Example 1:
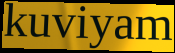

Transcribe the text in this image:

kuviyam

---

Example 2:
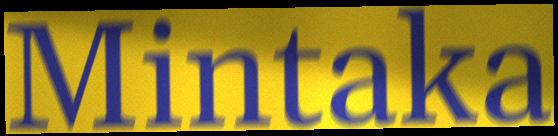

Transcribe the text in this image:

Mintaka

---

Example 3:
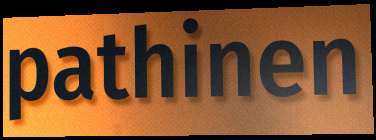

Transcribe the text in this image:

pathinen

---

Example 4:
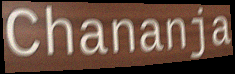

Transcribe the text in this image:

Chananja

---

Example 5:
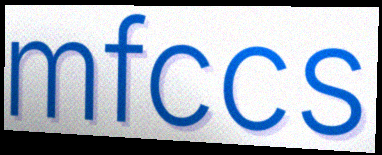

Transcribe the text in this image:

mfccs